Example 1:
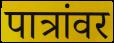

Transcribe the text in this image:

पात्रांवर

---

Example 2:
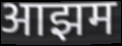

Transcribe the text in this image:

आझम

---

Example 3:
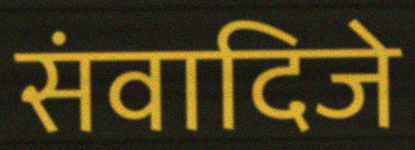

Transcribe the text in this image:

संवादिजे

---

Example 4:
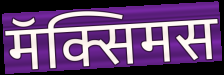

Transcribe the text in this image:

मॅक्सिमस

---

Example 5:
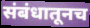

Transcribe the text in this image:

संबंधातूनच